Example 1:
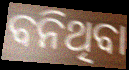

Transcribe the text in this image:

ବନିଥିବା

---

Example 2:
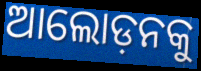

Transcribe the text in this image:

ଆଲୋଡ଼ନକୁ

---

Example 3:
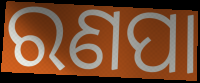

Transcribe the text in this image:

ରଣପା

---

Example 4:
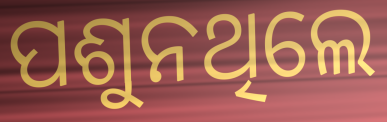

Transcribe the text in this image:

ପଶୁନଥିଲେ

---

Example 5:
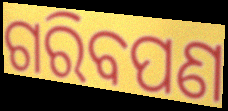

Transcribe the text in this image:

ଗରିବପଣ